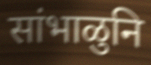
सांभाळुनि